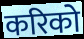
करिको